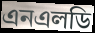
এনএলডি